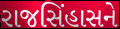
રાજસિંહાસને